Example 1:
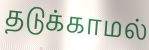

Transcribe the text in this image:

தடுக்காமல்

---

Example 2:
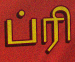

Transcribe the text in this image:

ப்ரி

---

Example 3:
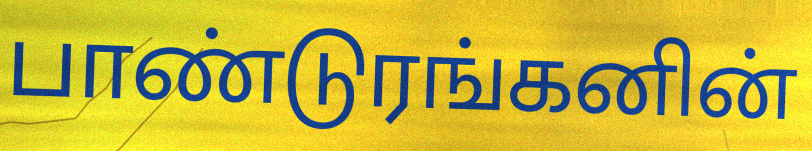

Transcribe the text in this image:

பாண்டுரங்கனின்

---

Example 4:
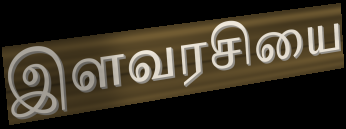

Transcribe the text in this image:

இளவரசியை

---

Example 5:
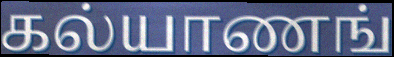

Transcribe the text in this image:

கல்யாணங்